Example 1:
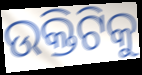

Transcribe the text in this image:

ଉକ୍ତିଟିକୁ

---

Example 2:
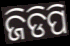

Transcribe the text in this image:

ଜିଡିପି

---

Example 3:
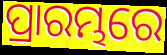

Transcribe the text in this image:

ପ୍ରାରମ୍ଭରେ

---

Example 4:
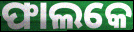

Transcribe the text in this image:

ଫାଲକେ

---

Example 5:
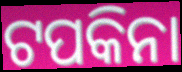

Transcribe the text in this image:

ଟପକିନା